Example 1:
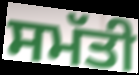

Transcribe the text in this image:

ਸਮੱਤੀ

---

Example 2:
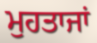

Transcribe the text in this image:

ਮੁਹਤਾਜਾਂ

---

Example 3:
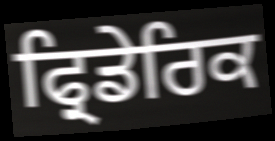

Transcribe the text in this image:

ਫ੍ਰਿਡੇਰਿਕ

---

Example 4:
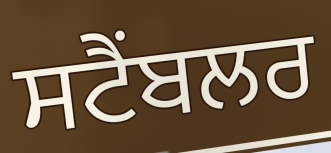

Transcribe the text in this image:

ਸਟੈਂਬਲਰ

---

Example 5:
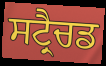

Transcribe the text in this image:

ਸਟ੍ਰੈਚਡ